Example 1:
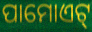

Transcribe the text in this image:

ପାମୋଏଟ୍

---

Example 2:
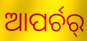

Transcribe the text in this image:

ଆପର୍ଚର୍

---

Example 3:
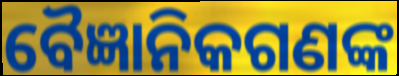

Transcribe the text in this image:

ବୈଜ୍ଞାନିକଗଣଙ୍କ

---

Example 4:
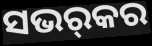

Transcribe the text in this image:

ସଭର୍‌କର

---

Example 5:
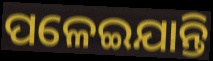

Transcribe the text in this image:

ପଳେଇଯାନ୍ତି